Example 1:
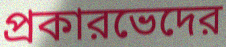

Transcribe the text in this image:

প্রকারভেদের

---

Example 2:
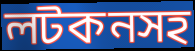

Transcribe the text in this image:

লটকনসহ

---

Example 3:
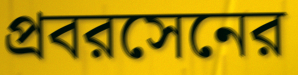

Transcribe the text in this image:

প্রবরসেনের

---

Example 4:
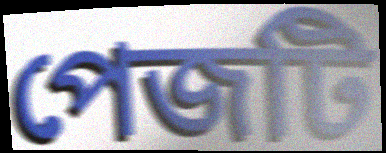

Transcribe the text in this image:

পেজটি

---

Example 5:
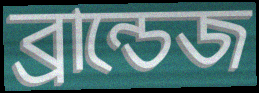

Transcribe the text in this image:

ব্রান্ডেজ